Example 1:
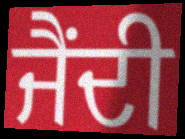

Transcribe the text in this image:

ਜੈਂਦੀ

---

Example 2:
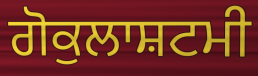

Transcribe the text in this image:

ਗੋਕੁਲਾਸ਼ਟਮੀ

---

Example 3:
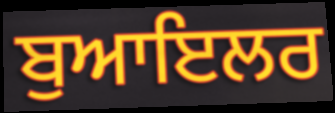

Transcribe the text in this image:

ਬੁਆਇਲਰ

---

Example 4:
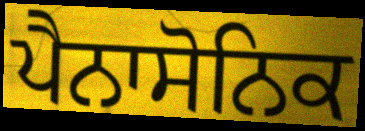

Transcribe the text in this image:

ਪੈਨਾਸੋਨਿਕ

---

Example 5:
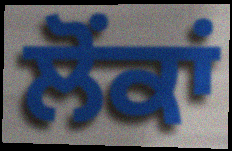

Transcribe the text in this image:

ਲੋਂਕਾਂ